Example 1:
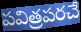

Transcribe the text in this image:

పవిత్రపరచే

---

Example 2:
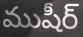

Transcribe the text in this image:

ముషీర్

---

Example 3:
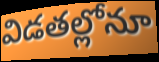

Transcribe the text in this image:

విడతల్లోనూ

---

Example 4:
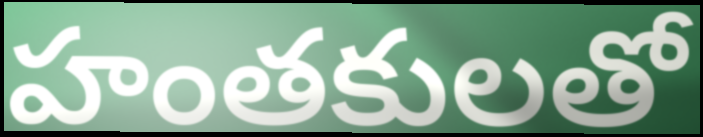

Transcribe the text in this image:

హంతకులతో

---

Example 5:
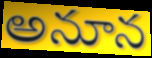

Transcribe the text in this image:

అనూన